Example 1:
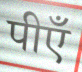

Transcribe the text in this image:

पीएँ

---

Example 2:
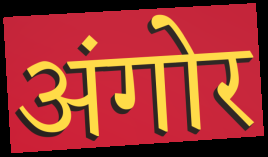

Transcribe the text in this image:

अंगोर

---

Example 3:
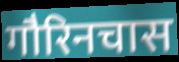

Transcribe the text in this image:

गौरिनचास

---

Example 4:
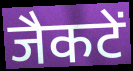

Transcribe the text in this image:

जैकटें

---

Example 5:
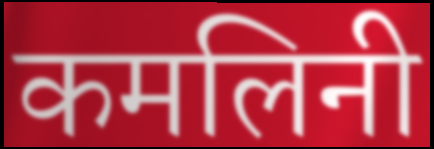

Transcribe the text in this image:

कमलिनी